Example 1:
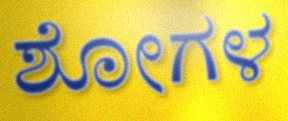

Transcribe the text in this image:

ಶೋಗಳ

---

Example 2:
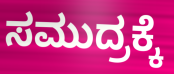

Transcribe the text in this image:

ಸಮುದ್ರಕ್ಕೆ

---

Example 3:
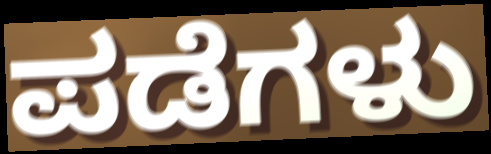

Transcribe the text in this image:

ಪಡೆಗಳು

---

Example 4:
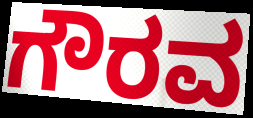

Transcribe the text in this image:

ಗೌರವ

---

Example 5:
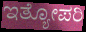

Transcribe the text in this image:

ಇತ್ಯೋಪರಿ